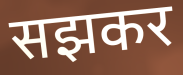
सझकर